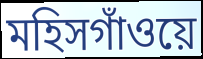
মহিসগাঁওয়ে